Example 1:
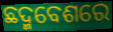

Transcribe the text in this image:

ଛଦ୍ମବେଶରେ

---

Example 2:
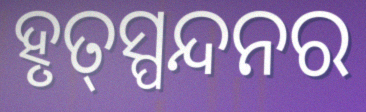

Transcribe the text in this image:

ହୃତ୍‌ସ୍ପନ୍ଦନର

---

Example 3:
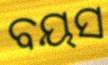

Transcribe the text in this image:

ବୟସ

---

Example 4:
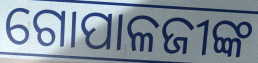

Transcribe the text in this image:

ଗୋପାଳଜୀଙ୍କ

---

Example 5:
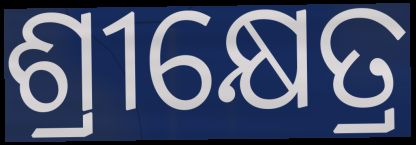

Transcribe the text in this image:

ଶ୍ରୀକ୍ଷେତ୍ର